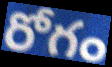
రోగం